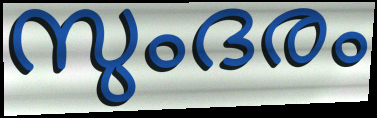
സുംദരം